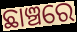
ଛାଞ୍ଚରେ